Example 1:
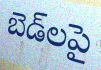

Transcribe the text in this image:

బెడ్‌లపై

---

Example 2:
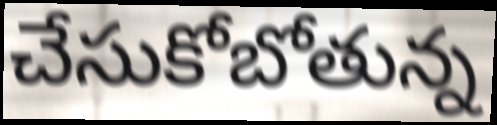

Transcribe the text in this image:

చేసుకోబోతున్న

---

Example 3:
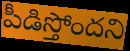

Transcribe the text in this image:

పీడిస్తోందని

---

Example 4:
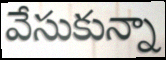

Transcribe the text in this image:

వేసుకున్నా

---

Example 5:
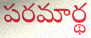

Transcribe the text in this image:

పరమార్థ